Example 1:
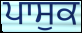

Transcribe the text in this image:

ਪਾਸੁਕ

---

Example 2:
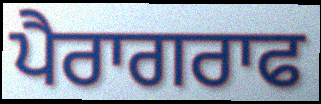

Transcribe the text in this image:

ਪੈਰਾਗਰਾਫ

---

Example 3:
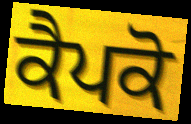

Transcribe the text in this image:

ਕੈਪਕੋ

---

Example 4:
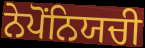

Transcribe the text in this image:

ਨੇਪੋਂਨਿਯਚੀ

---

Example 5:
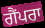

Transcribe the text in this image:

ਗੈਂਪਰਾ